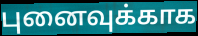
புனைவுக்காக